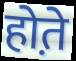
होत़े